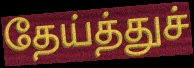
தேய்த்துச்